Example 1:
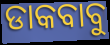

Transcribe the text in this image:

ଡାକବାବୁ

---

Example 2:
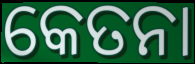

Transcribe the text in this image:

କେତନା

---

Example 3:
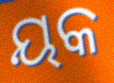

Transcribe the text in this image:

ୟକ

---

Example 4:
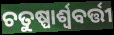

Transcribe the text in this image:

ଚତୁଷ୍ପାର୍ଶ୍ୱବର୍ତ୍ତୀ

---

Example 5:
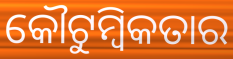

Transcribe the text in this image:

କୌଟୁମ୍ବିକତାର